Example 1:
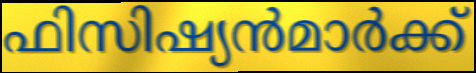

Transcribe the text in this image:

ഫിസിഷ്യൻമാർക്ക്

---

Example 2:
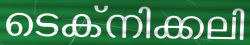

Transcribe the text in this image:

ടെക്‌നിക്കലി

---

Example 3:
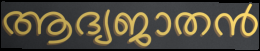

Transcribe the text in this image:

ആദ്യജാതൻ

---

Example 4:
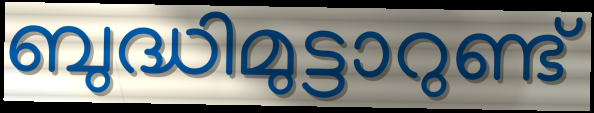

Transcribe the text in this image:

ബുദ്ധിമുട്ടാറുണ്ട്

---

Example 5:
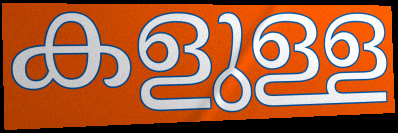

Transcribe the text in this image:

കളുള്ള